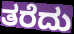
ತರೆದು